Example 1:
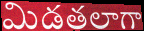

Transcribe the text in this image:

మిడతలాగా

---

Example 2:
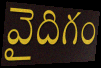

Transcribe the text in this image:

వైదిగం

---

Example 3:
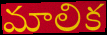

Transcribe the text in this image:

మాలిక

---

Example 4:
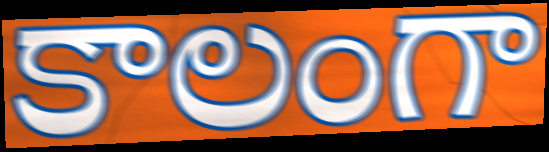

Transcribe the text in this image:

కాలంగా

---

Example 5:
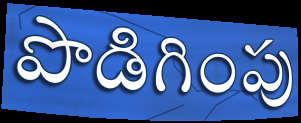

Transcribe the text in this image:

పొడిగింపు